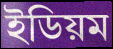
ইডিয়ম